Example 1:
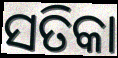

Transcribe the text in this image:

ସତିକା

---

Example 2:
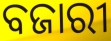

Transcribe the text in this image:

ବଜାରୀ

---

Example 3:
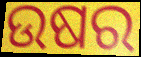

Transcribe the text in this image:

ଉଷର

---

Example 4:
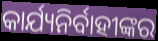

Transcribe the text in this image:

କାର୍ଯ୍ୟନିର୍ବାହୀଙ୍କର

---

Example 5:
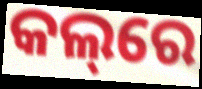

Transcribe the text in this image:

କଲ୍‌ରେ